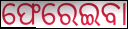
ଫେରେଇବା